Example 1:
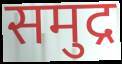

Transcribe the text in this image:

समुद्र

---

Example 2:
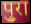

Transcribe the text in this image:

पु॒रा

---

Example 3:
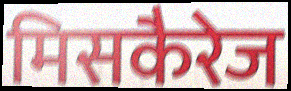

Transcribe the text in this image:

मिसकैरेज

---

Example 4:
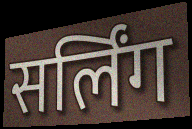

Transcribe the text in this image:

सर्लिंग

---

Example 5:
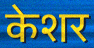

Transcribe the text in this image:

केशर